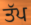
ਤੱਪ